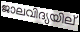
ജാലവിദ്യയില്